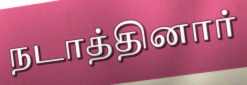
நடாத்தினார்